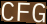
CFG